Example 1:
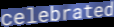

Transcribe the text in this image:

celebrated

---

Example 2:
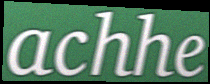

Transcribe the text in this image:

achhe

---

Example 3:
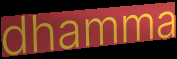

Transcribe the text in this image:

dhamma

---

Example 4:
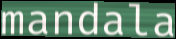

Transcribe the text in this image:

mandala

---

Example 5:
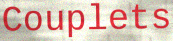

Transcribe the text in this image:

Couplets